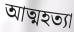
আত্মহত্যা